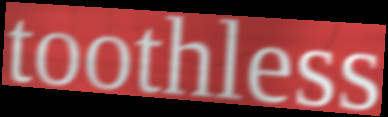
toothless